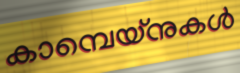
കാമ്പെയ്നുകൾ